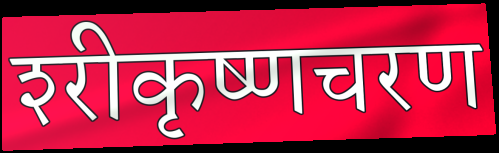
श्रीकृष्णचरण